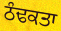
ਠੰਢਕਤਾ